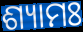
ଶ୍ୟାମଃ